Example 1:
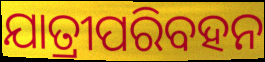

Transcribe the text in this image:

ଯାତ୍ରୀପରିବହନ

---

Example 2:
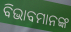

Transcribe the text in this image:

ବିଭାବମାନଙ୍କ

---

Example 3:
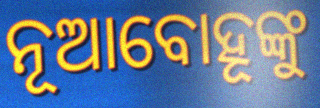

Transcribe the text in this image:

ନୂଆବୋହୂଙ୍କୁ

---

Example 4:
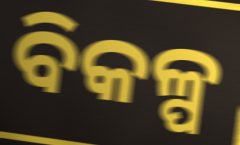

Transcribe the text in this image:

ବିକଳ୍ପ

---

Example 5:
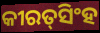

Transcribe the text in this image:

କୀରତ୍‍ସିଂହ